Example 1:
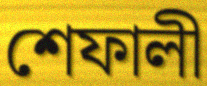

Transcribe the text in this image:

শেফালী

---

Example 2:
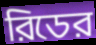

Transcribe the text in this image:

রিডের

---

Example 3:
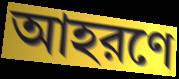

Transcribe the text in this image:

আহরণে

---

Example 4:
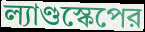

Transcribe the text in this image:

ল্যাণ্ডস্কেপের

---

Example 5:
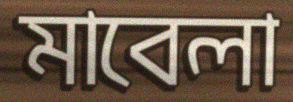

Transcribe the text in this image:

মাবেলা